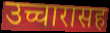
उच्चारासह